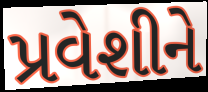
પ્રવેશીને